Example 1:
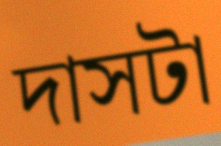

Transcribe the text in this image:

দাসটা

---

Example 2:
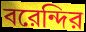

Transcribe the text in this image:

বরেন্দির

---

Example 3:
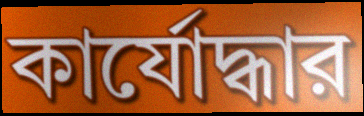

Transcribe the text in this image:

কার্যোদ্ধার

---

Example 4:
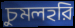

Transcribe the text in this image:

চুমলহরি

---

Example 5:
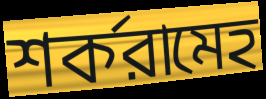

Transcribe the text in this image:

শর্করামেহ